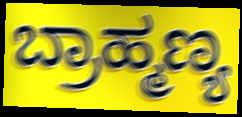
ಬ್ರಾಹ್ಮಣ್ಯ